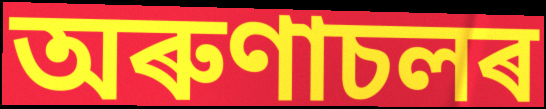
অৰুণাচলৰ